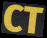
CT